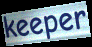
keeper